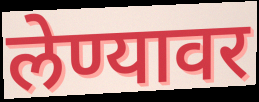
लेण्यावर